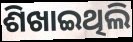
ଶିଖାଇଥିଲି